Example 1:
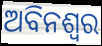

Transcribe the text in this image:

ଅବିନଶ୍ଵର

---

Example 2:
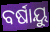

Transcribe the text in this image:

ବର୍ଷାୟୁ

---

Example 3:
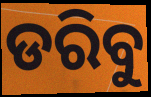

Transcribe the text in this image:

ଡରିବୁ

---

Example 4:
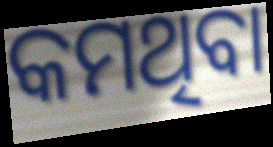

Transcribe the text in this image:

କମଥିବା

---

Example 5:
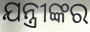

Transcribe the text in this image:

ଯନ୍ତ୍ରୀଙ୍କର